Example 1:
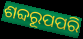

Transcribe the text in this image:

ଶବ୍ଦରୂପପରି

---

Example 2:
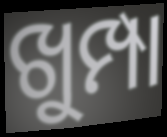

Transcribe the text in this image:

ଖୁମ୍ପା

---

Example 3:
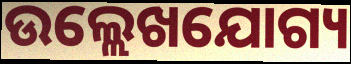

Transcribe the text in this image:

ଉଲ୍ଲେଖଯୋଗ୍ୟ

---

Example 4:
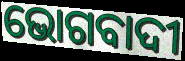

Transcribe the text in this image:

ଭୋଗବାଦୀ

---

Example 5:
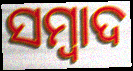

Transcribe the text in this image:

ସମ୍ବାଦ